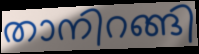
താനിറങ്ങി